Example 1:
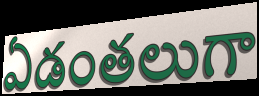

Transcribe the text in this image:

ఏడంతలుగా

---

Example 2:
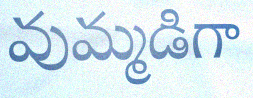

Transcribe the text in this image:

వుమ్మడిగా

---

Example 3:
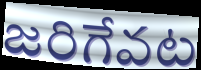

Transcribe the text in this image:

జరిగేవట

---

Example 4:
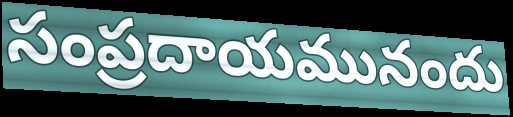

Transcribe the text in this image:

సంప్రదాయమునందు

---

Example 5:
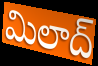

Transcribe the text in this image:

మిలాద్